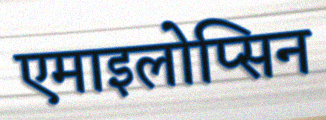
एमाइलोप्सिन